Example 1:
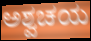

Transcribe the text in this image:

ಅಶ್ವಚಯ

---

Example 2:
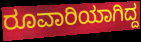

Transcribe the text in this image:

ರೂವಾರಿಯಾಗಿದ್ದ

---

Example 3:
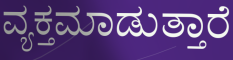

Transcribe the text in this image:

ವ್ಯಕ್ತಮಾಡುತ್ತಾರೆ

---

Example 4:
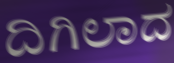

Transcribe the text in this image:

ದಿಗಿಲಾದ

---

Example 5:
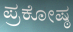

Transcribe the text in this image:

ಪ್ರಕೋಷ್ಠ